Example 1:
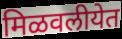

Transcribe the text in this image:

मिळवलीयेत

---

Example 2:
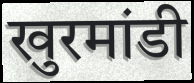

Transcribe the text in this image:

खुरमांडी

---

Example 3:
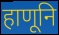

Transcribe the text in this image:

हाणूनि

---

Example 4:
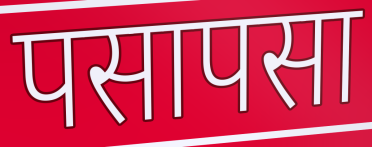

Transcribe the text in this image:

पसापसा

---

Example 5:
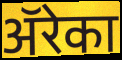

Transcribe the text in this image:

ॲरेका